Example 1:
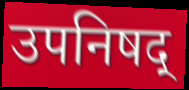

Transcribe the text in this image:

उपनिषद्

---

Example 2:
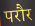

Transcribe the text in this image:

परौर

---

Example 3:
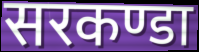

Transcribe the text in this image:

सरकण्डा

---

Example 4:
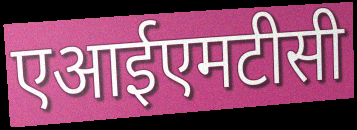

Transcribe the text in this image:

एआईएमटीसी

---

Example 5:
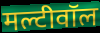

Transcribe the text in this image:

मल्टीवॉल